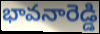
భావనారెడ్డి